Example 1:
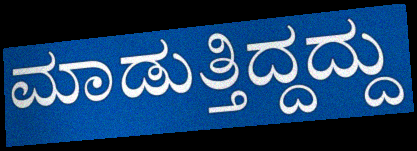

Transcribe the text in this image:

ಮಾಡುತ್ತಿದ್ದದ್ದು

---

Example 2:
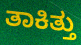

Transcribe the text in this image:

ತಾಕಿತ್ತು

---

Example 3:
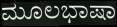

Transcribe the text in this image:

ಮೂಲಭಾಷಾ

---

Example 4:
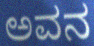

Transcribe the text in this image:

ಅವನ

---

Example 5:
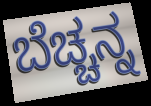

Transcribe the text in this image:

ಬೆಚ್ಚನ್ನ